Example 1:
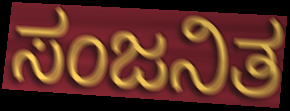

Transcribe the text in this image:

ಸಂಜನಿತ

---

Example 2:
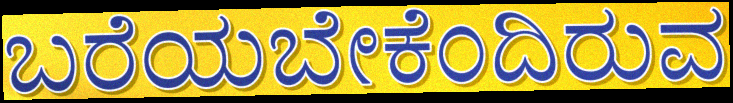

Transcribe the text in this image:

ಬರೆಯಬೇಕೆಂದಿರುವ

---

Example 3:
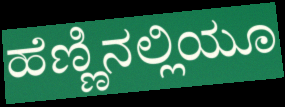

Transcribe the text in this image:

ಹೆಣ್ಣಿನಲ್ಲಿಯೂ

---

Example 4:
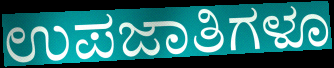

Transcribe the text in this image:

ಉಪಜಾತಿಗಳೂ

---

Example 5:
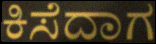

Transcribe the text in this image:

ಕಿಸೆದಾಗ